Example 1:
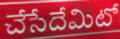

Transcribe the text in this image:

చేసేదేమిటో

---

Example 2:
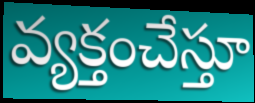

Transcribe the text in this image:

వ్యక్తంచేస్తూ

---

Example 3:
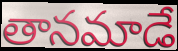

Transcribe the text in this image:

తానమాడే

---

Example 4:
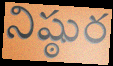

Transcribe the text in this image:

నిష్ఠుర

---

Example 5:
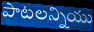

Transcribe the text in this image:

పాటలన్నియు